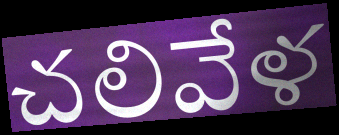
చలివేళ